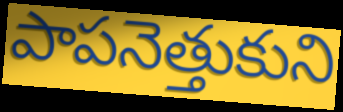
పాపనెత్తుకుని